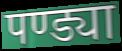
पण्ड्या